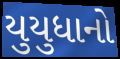
યુયુધાનો